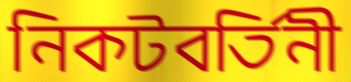
নিকটবর্তিনী